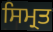
ਸਿਮ੍ਰਤ